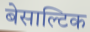
बेसाल्टिक